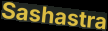
Sashastra